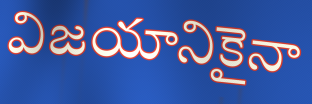
విజయానికైనా